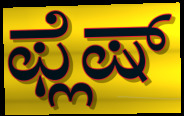
ಫ್ಲೆಷ್